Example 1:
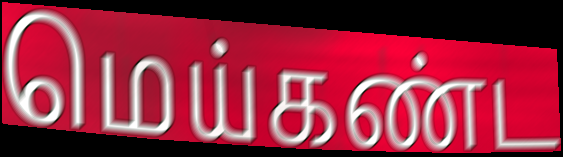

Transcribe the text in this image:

மெய்கண்ட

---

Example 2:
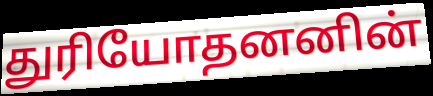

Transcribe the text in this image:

துரியோதனனின்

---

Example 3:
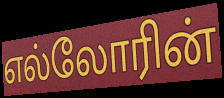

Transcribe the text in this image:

எல்லோரின்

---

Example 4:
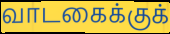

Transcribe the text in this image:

வாடகைக்குக்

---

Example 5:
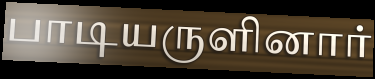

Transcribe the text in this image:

பாடியருளினார்